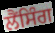
ਲੈਂਸਿੰਗ